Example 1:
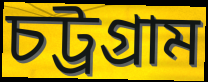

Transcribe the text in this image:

চট্রগ্রাম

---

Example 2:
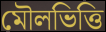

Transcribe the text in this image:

মৌলভিত্তি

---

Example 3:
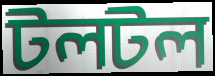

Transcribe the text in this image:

টলটল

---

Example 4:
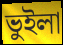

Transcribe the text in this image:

ভুইলা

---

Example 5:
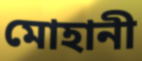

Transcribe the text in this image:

মোহানী